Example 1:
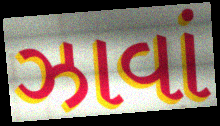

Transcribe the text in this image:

ઝાવાં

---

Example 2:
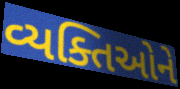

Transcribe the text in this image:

વ્યક્તિઓને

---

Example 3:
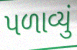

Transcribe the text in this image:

પળાવ્યું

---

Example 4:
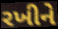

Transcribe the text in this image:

રખીને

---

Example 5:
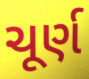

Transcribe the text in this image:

ચૂર્ણ